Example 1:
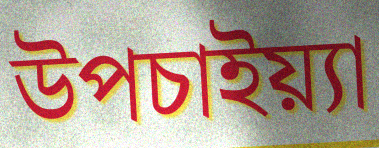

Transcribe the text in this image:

উপচাইয়্যা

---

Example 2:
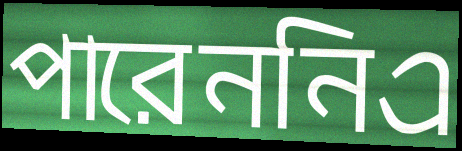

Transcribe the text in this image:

পারেননিএ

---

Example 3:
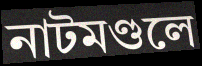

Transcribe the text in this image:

নাটমণ্ডলে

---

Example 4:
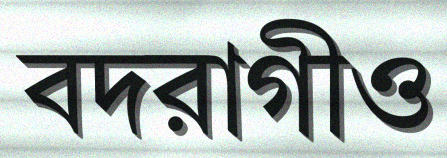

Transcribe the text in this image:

বদরাগীও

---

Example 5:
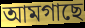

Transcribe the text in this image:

আমগাছে